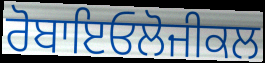
ਰੋਬਾਇਓਲੋਜੀਕਲ